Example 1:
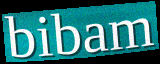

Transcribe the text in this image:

bibam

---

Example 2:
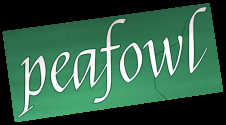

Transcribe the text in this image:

peafowl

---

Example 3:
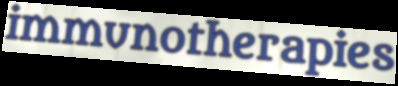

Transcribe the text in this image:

immunotherapies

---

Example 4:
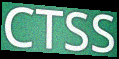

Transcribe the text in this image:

CTSS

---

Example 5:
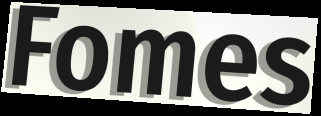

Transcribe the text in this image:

Fomes